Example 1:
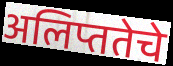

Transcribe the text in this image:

अलिप्ततेचे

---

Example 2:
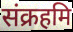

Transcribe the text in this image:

संक्रहमि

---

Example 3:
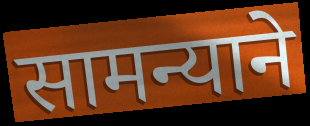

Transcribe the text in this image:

सामन्याने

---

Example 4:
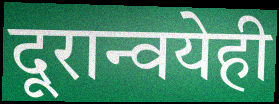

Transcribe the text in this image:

दूरान्वयेही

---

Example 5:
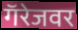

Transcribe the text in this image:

गॅरेजवर